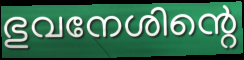
ഭുവനേശിന്റെ